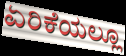
ಏರಿಕೆಯಲ್ಲೂ